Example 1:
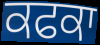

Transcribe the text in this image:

ਕਫਕਾ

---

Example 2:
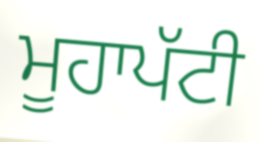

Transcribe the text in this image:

ਮੂਹਾਪੱਟੀ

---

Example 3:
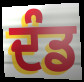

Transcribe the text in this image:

ਦੰਡ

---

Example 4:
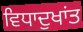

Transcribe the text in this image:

ਵਿਧਾਦੁਖਾਂਤ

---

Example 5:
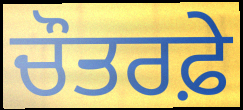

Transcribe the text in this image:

ਚੌਤਰਫ਼ੇ